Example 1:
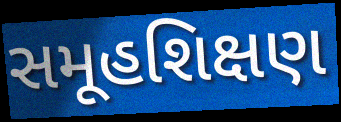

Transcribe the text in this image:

સમૂહશિક્ષણ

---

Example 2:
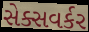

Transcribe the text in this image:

સેક્સવર્કર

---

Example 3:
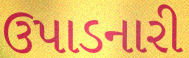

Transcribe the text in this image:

ઉપાડનારી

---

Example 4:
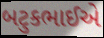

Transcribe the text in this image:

બટુકભાઈએ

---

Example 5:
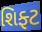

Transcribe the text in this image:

શિફ્ટ